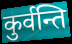
कुर्वन्ति